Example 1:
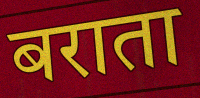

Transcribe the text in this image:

बराता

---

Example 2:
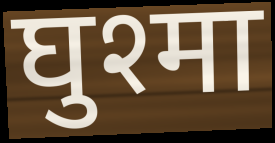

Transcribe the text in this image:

घुश्मा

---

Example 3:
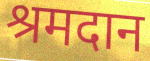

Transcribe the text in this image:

श्रमदान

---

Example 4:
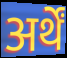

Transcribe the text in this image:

अर्थें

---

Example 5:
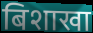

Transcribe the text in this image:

बिशाखा